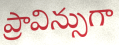
ప్రావిన్సుగా